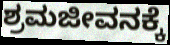
ಶ್ರಮಜೀವನಕ್ಕೆ